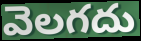
వెలగదు